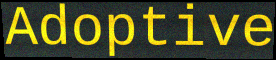
Adoptive